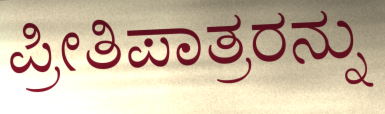
ಪ್ರೀತಿಪಾತ್ರರನ್ನು